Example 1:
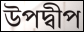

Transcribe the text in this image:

উপদ্বীপ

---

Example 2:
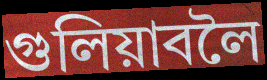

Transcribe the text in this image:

গুলিয়াবলৈ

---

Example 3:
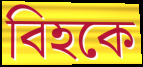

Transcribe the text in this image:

বিহকে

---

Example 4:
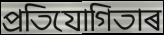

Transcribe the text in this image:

প্ৰতিযোগিতাৰ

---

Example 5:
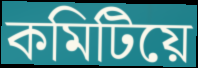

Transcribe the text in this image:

কমিটিয়ে